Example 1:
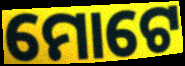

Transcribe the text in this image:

ମୋଟେ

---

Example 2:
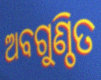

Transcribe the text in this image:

ଅବଗୁଣ୍ଠିତ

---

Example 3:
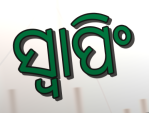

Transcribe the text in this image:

ସ୍ବାପିଂ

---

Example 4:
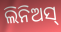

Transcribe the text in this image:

ଲିନିଅସ୍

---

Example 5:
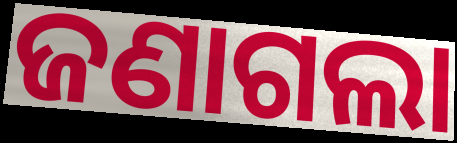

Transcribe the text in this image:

ଜଣାଗଲା